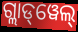
ଗ୍ଲାଡ୍‌ୱେଲ୍